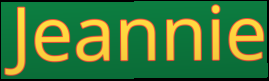
Jeannie